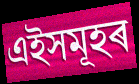
এইসমূহৰ